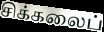
சிக்கலைப்